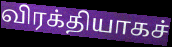
விரக்தியாகச்